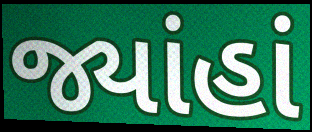
જ્યાંહાં